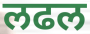
लढल